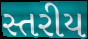
સ્તરીય